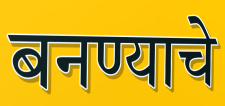
बनण्याचे